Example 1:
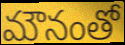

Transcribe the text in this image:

మౌనంతో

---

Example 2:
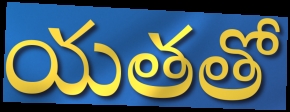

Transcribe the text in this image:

యతతో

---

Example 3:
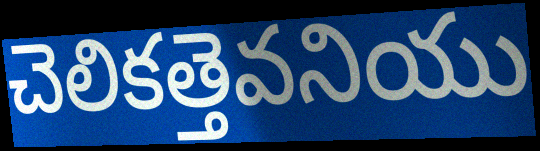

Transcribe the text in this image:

చెలికత్తెవనియు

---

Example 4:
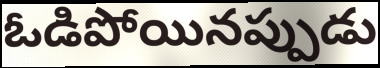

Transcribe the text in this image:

ఓడిపోయినప్పుడు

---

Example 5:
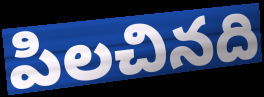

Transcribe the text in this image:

పిలచినది